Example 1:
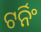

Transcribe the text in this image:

ଟର୍ନିଂ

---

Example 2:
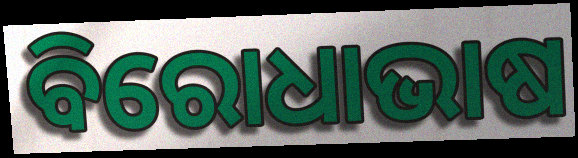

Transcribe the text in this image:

ବିରୋଧାଭାଷ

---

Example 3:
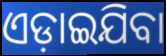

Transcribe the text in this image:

ଏଡ଼ାଇଯିବା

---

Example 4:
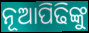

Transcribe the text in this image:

ନୂଆପିଢିଙ୍କୁ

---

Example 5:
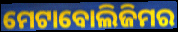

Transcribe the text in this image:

ମେଟାବୋଲିଜିମର